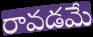
రావడమే